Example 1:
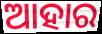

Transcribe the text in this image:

ଆହାର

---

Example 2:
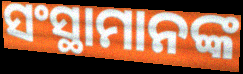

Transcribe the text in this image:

ସଂସ୍ଥାମାନଙ୍କ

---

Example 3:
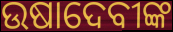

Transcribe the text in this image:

ଉଷାଦେବୀଙ୍କ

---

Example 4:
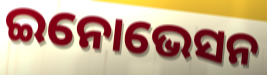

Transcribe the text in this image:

ଇନୋଭେସନ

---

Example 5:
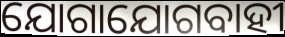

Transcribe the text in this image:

ଯୋଗାଯୋଗବାହୀ